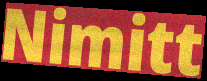
Nimitt